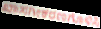
ಖಾಸಗೀಕರಣಗೊಳಿಸಿ